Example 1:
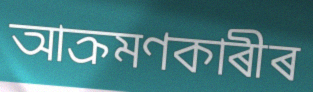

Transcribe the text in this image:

আক্ৰমণকাৰীৰ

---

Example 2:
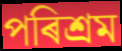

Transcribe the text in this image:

পৰিশ্ৰম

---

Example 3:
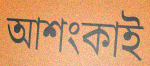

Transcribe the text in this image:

আশংকাই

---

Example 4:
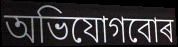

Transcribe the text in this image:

অভিযোগবোৰ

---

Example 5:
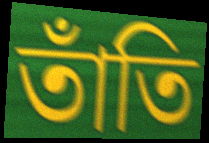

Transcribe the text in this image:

তাঁতি